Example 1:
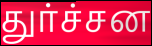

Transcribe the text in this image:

துர்ச்சன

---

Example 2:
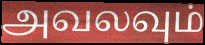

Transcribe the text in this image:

அவலவும்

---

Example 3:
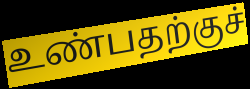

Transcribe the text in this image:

உண்பதற்குச்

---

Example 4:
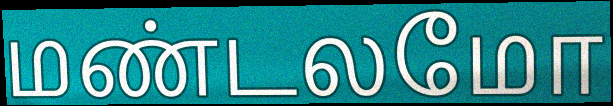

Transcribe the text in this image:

மண்டலமோ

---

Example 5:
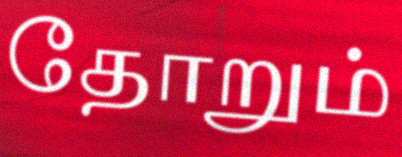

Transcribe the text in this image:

தோறும்